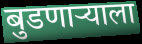
बुडणाऱ्याला